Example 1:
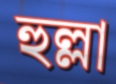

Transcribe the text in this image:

হুল্লা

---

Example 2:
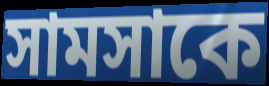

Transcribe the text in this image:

সামসাকে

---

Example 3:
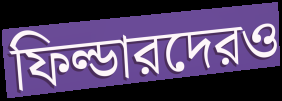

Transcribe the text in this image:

ফিল্ডারদেরও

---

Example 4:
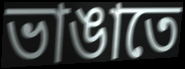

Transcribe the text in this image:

ভাঙাতে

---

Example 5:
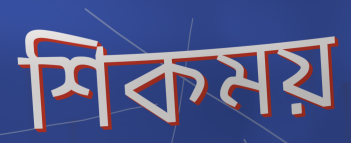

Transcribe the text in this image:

শিকময়